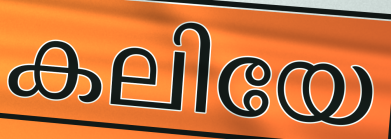
കലിയേ